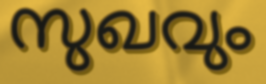
സുഖവും